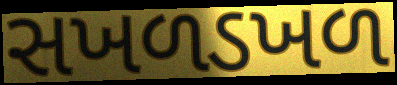
સખળડખળ